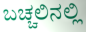
ಬಚ್ಚಲಿನಲ್ಲಿ